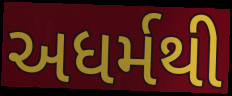
અધર્મથી